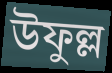
উফুল্ল